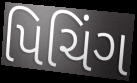
પિચિંગ